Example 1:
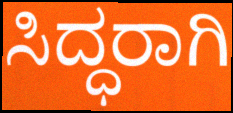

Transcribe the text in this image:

ಸಿದ್ಧರಾಗಿ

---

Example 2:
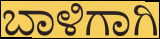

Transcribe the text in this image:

ಬಾಳಿಗಾಗಿ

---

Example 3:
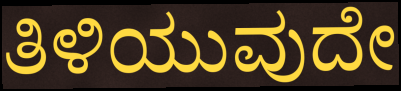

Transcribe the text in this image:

ತಿಳಿಯುವುದೇ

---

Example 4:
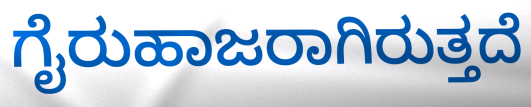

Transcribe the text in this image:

ಗೈರುಹಾಜರಾಗಿರುತ್ತದೆ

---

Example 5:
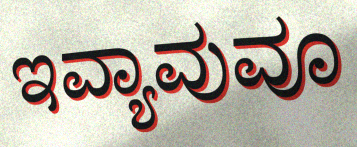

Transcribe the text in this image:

ಇವ್ಯಾವುವೂ